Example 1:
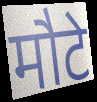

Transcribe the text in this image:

मौटे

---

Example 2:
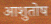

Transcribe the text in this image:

आशुतोष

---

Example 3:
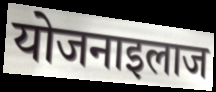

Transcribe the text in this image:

योजनाइलाज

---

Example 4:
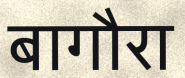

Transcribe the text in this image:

बागौरा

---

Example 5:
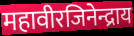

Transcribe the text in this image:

महावीरजिनेन्द्राय